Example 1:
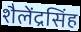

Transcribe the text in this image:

शैलेंद्रसिंह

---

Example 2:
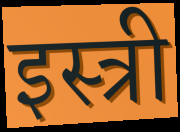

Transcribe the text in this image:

इस्त्री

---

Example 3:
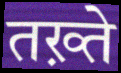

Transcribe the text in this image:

तख़्ते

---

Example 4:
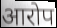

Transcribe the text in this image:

आरोप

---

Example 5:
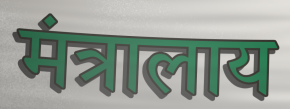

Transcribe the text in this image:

मंत्रालाय